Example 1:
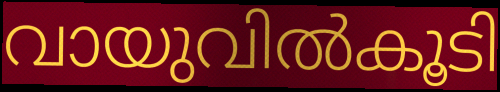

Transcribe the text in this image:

വായുവിൽകൂടി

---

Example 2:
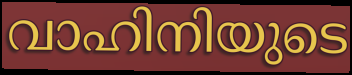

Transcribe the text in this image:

വാഹിനിയുടെ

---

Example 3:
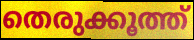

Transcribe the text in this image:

തെരുക്കൂത്ത്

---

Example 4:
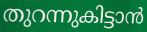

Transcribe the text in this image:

തുറന്നുകിട്ടാൻ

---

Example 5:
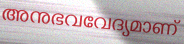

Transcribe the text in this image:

അനുഭവവേദ്യമാണ്